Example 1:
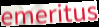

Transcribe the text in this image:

emeritus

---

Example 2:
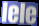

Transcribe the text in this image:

lele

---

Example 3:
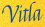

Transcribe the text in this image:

Vitla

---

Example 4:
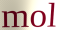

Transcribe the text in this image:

mol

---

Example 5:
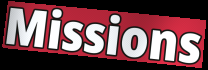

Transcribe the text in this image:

Missions